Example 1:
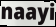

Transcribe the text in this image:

naayi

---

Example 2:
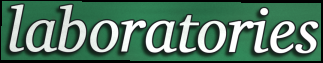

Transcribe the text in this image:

laboratories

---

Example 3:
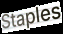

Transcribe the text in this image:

Staples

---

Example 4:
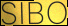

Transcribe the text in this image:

SIBO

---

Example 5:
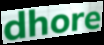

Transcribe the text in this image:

dhore